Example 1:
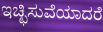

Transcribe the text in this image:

ಇಚ್ಛಿಸುವೆಯಾದರೆ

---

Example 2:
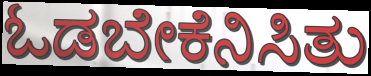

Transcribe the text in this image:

ಓಡಬೇಕೆನಿಸಿತು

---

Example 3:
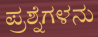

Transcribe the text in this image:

ಪ್ರಶ್ನೆಗಳನು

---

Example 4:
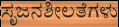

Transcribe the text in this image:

ಸೃಜನಶೀಲತೆಗಳು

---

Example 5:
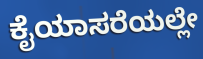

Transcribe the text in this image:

ಕೈಯಾಸರೆಯಲ್ಲೇ